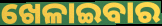
ଖେଳାଇବାର